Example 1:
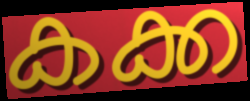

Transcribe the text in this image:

കക്ക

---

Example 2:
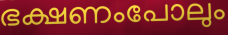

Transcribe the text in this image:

ഭക്ഷണംപോലും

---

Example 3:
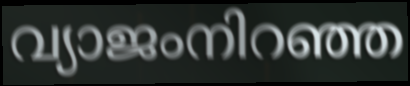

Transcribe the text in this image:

വ്യാജംനിറഞ്ഞ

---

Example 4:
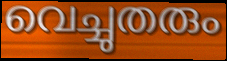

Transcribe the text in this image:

വെച്ചുതരും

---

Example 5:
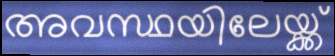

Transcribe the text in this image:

അവസ്ഥയിലേയ്ക്ക്